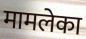
मामलेका